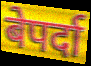
बेपर्दा